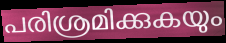
പരിശ്രമിക്കുകയും